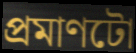
প্ৰমাণটো